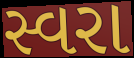
સ્વરા